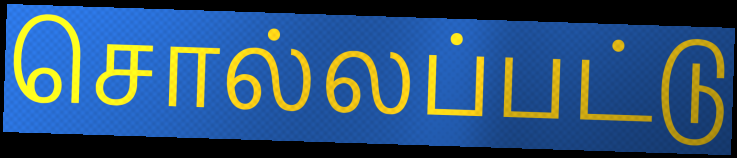
சொல்லப்பட்டு